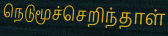
நெடுமூச்செறிந்தாள்